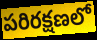
పరిరక్షణలో